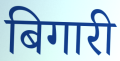
बिगारी